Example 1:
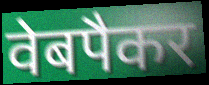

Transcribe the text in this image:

वेबपैकर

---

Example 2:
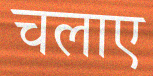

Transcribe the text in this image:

चलाए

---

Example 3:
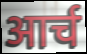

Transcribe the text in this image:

आर्च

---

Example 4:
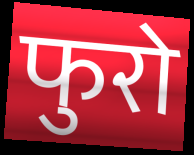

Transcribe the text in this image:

फुरो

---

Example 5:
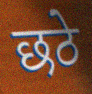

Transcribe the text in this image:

छठे